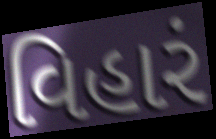
વિહારં